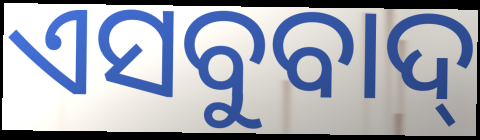
ଏସବୁବାଦ୍